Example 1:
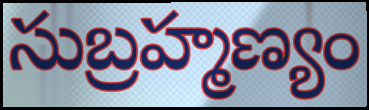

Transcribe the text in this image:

సుబ్రహ్మణ్యం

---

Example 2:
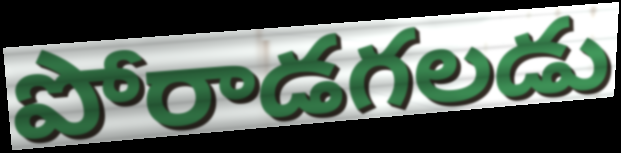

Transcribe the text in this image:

పోరాడగలడు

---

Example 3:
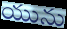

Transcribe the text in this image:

యును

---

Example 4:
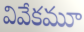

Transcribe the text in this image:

వివేకమూ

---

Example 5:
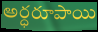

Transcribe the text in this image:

అర్ధరూపాయి